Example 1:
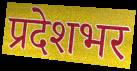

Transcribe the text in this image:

प्रदेशभर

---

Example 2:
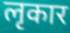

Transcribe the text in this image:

लृकार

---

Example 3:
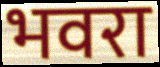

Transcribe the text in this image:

भवरा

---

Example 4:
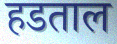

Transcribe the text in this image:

हडताल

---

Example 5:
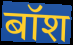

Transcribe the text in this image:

बॉश